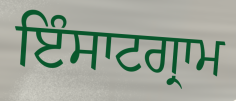
ਇੰਸਾਟਗ੍ਰਾਮ